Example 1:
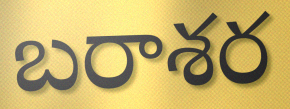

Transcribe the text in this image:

బరాశర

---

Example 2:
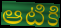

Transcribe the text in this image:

ఆటికి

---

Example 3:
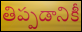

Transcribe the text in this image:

తిప్పడానికీ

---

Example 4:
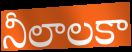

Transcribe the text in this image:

నీలాలకా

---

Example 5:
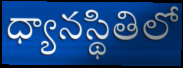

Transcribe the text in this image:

ధ్యానస్థితిలో